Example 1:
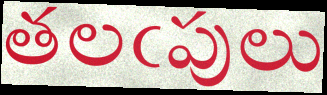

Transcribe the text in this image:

తలఁపులు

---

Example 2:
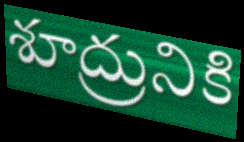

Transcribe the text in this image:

శూద్రునికి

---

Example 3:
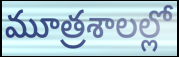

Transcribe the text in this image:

మూత్రశాలల్లో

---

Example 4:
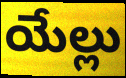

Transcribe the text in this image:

యేల్లు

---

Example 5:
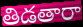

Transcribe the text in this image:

తిడతారా